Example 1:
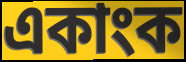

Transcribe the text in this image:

একাংক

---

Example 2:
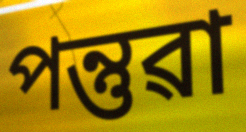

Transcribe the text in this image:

পন্তুৱা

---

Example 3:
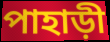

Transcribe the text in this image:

পাহাড়ী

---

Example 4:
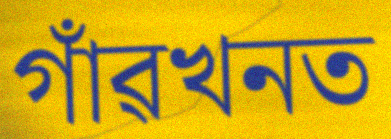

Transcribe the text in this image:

গাঁৱখনত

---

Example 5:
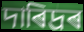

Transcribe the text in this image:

দাৰিদ্ৰৰ